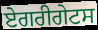
ਏਗਰੀਗੇਟਸ